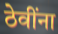
ठेवींना